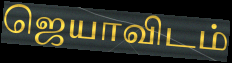
ஜெயாவிடம்